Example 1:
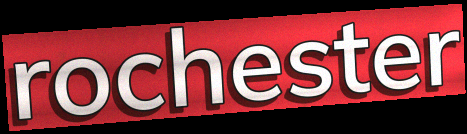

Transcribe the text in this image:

rochester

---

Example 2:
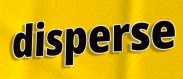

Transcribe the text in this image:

disperse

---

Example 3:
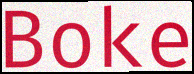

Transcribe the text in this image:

Boke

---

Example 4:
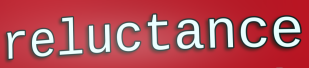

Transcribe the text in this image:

reluctance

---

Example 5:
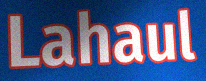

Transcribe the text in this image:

Lahaul